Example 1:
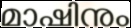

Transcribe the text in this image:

മാഷിനും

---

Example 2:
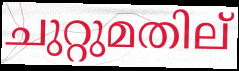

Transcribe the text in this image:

ചുറ്റുമതില്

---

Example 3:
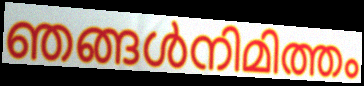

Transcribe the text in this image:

ഞങ്ങൾനിമിത്തം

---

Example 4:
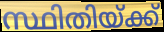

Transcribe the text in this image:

സ്ഥിതിയ്ക്ക്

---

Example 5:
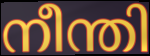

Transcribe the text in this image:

നീന്തി